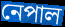
নেপাল